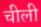
चीली